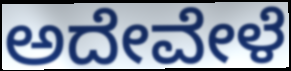
ಅದೇವೇಳೆ